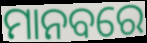
ମାନବରେ